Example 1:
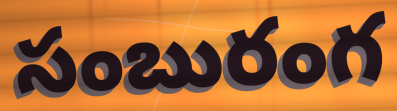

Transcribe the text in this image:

సంబురంగ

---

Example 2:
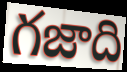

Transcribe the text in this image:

గజాది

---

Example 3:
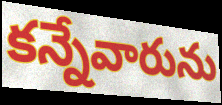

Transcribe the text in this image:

కన్నేవారును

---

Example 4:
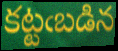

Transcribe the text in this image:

కట్టఁబడిన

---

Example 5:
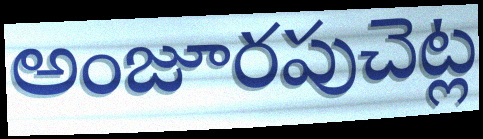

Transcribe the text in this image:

అంజూరపుచెట్ల